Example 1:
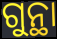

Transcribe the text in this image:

ଗୁନ୍ଥା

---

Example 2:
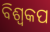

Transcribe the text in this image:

ବିଶ୍ୱକପ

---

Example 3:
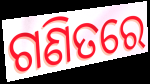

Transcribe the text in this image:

ଗଣିତରେ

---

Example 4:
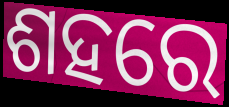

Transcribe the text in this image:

ଶହରେ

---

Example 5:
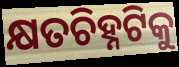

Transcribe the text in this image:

କ୍ଷତଚିହ୍ନଟିକୁ